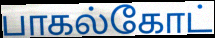
பாகல்கோட்